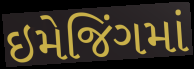
ઇમેજિંગમાં